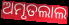
ଅମୃତଲାଲ